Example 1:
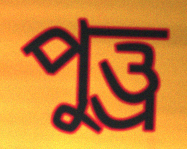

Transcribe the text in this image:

পুত্ত্র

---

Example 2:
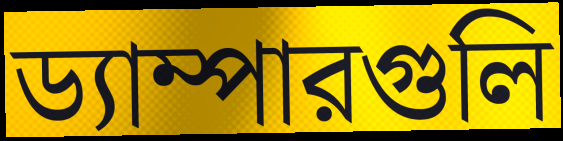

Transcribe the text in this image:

ড্যাম্পারগুলি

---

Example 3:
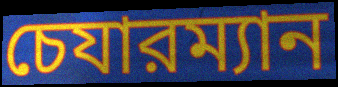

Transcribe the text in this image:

চেযারম্যান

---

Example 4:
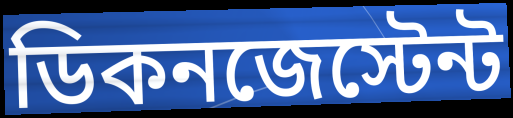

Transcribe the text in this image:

ডিকনজেস্টেন্ট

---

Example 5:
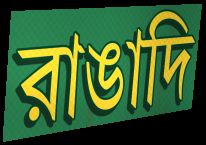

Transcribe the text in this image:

রাঙাদি